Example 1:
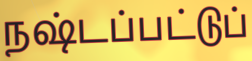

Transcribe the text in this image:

நஷ்டப்பட்டுப்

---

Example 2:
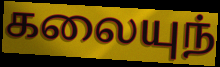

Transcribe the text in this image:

கலையுந்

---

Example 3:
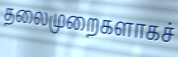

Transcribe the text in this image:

தலைமுறைகளாகச்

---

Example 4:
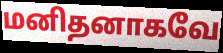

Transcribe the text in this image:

மனிதனாகவே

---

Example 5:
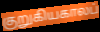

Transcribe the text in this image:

குறுகியகாலப்